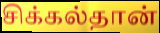
சிக்கல்தான்